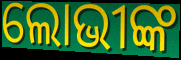
ଲୋଭୀଙ୍କ